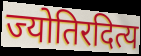
ज्योतिरदित्य